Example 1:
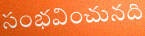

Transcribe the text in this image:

సంభవించునది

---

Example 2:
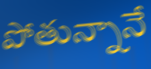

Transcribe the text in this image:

పోతున్నానే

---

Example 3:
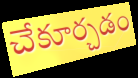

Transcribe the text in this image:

చేకూర్చడం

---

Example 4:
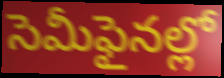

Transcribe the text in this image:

సెమీఫైనల్లో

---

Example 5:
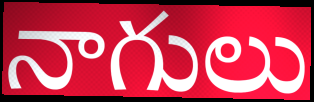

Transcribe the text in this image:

నాగులు